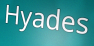
Hyades